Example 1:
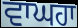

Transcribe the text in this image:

ਵਾਘਹਾ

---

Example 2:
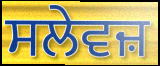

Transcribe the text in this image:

ਸਲੇਵਜ਼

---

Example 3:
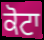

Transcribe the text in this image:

ਕੋਟਾ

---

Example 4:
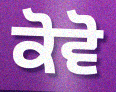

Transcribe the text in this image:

ਕੋਵੋ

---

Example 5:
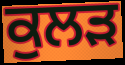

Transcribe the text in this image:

ਕੁਲੜ